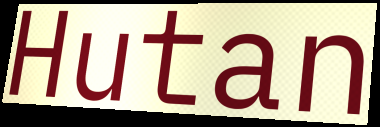
Hutan